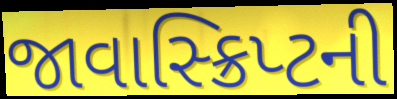
જાવાસ્ક્રિપ્ટની